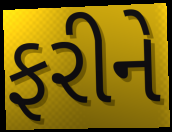
ફરીને